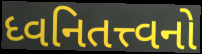
ધ્વનિતત્ત્વનો